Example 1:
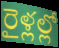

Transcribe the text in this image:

రైళ్లల్లో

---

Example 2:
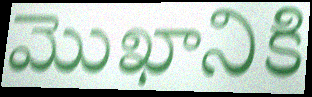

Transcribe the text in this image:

మొఖానికి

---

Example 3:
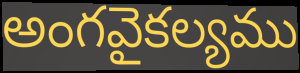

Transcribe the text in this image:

అంగవైకల్యము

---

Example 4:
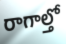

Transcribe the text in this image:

రాగాల్తో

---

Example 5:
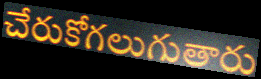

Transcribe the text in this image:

చేరుకోగలుగుతారు